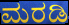
ಮರಡಿ